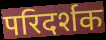
परिदर्शक